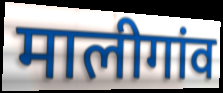
मालीगांव